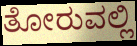
ತೋರುವಲ್ಲಿ